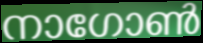
നാഗോൺ